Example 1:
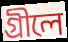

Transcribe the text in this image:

গ্রীলে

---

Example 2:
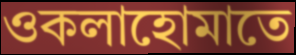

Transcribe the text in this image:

ওকলাহোমাতে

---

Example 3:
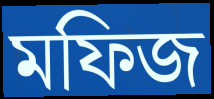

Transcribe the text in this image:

মফিজ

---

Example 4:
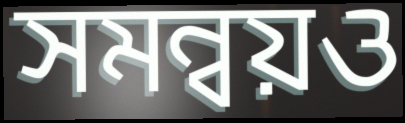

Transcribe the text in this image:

সমন্বয়ও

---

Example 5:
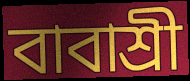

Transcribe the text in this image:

বাবাশ্রী